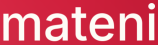
mateni